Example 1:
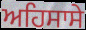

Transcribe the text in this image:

ਅਹਿਸਾਸੇ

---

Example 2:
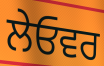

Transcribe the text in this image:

ਲੇਓਵਰ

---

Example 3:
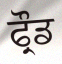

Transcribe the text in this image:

ਫ੍ਰੌਡ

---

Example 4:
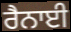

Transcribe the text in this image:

ਰੈਨਾਈ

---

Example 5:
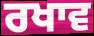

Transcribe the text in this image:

ਰਖਾਵ